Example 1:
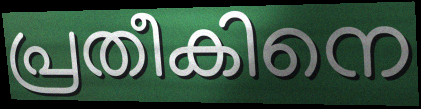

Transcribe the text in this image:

പ്രതീകിനെ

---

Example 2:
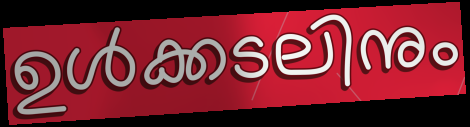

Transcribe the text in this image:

ഉൾക്കടലിനും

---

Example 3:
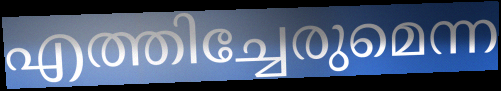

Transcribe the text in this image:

എത്തിച്ചേരുമെന്ന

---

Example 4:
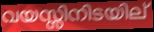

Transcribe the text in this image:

വയസ്സിനിടയില്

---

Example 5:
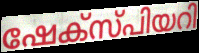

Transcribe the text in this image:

ഷേക്സ്പിയറി